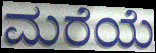
ಮರೆಯೆ